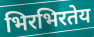
भिरभिरतेय